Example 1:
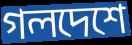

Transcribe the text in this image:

গলদেশে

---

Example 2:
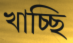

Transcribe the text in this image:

খাচ্ছি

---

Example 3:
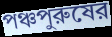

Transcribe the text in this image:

পঞ্চপুরুষের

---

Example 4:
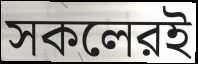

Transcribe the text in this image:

সকলেরই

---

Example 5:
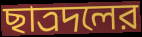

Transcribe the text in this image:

ছাত্রদলের